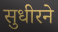
सुधीरने